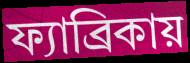
ফ্যাব্রিকায়